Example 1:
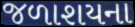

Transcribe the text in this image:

જળાશયના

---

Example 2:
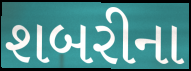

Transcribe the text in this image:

શબરીના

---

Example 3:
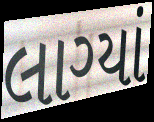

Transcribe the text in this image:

લાગ્યાં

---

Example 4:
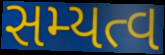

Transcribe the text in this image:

સમ્યત્વ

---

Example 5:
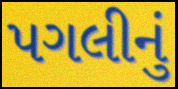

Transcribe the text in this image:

પગલીનું